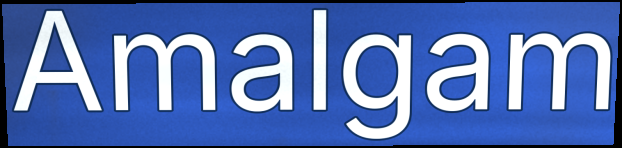
Amalgam